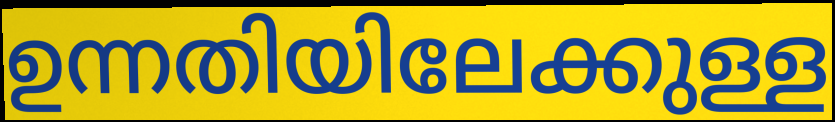
ഉന്നതിയിലേക്കുള്ള